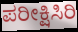
ಪರೀಕ್ಷಿಸಿರಿ